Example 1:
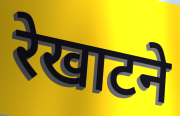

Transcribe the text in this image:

रेखाटने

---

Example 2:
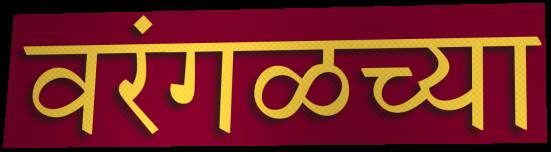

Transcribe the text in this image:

वरंगळच्या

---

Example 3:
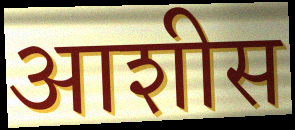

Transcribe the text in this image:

आशीस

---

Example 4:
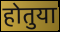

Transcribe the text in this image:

होतुया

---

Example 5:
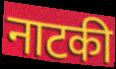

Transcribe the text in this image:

नाटकी